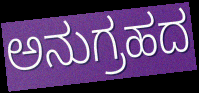
ಅನುಗ್ರಹದ